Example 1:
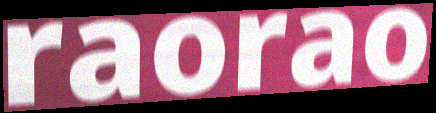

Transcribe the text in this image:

raorao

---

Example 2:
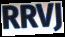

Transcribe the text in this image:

RRVJ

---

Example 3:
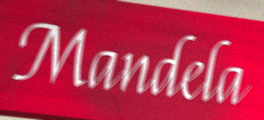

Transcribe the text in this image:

Mandela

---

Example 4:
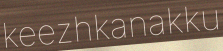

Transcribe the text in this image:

keezhkanakku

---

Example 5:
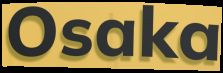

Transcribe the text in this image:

Osaka